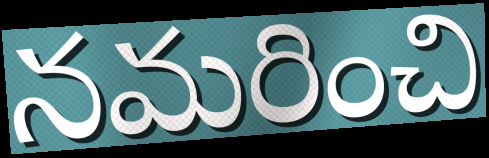
నమరించి